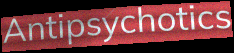
Antipsychotics